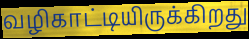
வழிகாட்டியிருக்கிறது